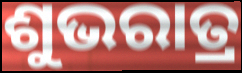
ଶୁଭରାତ୍ର